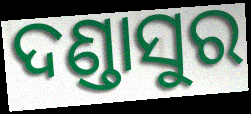
ଦଣ୍ଡାସୁର